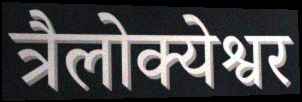
त्रैलोक्येश्वर